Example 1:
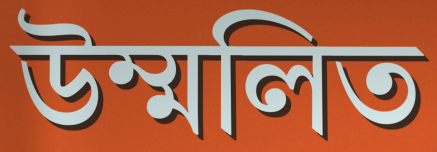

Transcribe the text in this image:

উম্মলিত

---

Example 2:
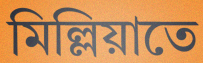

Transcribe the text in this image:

মিল্লিয়াতে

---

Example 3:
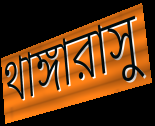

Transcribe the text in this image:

থাঙ্গারাসু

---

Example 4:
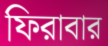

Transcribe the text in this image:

ফিরাবার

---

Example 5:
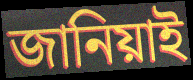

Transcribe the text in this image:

জানিয়াই